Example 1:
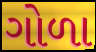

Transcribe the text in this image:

ગોળા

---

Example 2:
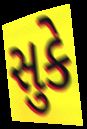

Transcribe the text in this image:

સુકે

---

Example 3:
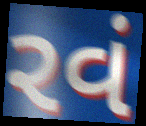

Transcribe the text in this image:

રવં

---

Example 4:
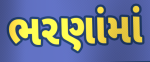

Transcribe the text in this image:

ભરણાંમાં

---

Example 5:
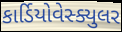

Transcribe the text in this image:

કાર્ડિયોવેસ્ક્યુલર